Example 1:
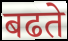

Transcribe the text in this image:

बढते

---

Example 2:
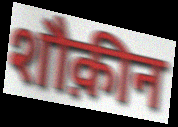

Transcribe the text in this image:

शौक़ीन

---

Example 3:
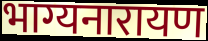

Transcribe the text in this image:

भाग्यनारायण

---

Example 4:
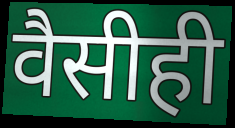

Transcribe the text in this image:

वैसीही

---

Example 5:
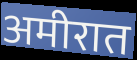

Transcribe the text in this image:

अमीरात